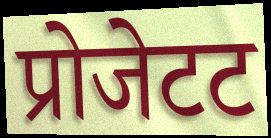
प्रोजेटट